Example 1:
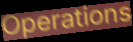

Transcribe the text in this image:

Operations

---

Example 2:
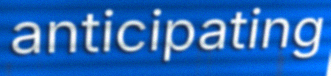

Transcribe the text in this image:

anticipating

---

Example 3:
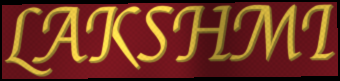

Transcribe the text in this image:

LAKSHMI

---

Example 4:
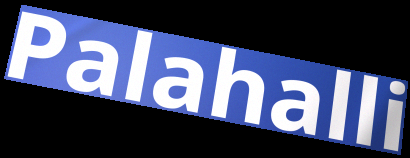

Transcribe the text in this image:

Palahalli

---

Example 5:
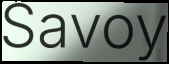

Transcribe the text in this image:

Savoy